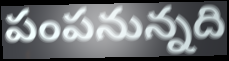
పంపనున్నది